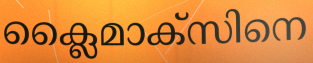
ക്ലൈമാക്സിനെ